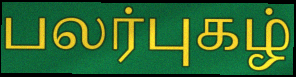
பலர்புகழ்